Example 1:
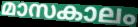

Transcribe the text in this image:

മാസകാലം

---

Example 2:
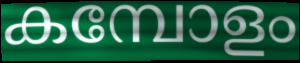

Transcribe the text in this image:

കമ്പോളം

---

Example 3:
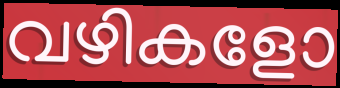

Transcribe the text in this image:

വഴികളോ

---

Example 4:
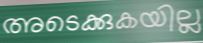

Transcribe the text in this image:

അടെക്കുകയില്ല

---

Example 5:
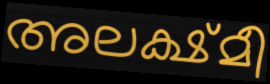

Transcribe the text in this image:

അലക്ഷ്മീ